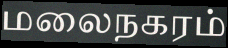
மலைநகரம்